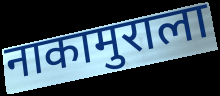
नाकामुराला